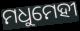
ମଧୁମେହୀ